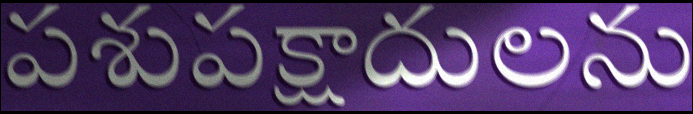
పశుపక్షాదులను